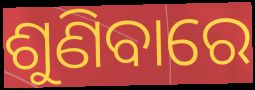
ଶୁଣିବାରେ